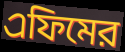
এফিমের